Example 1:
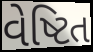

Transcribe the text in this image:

વેષ્ટિત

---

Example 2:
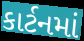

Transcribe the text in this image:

કાર્ટનમાં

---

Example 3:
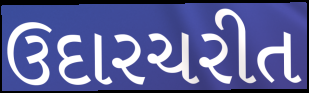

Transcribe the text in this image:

ઉદારચરીત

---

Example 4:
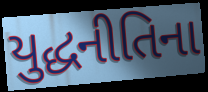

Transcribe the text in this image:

યુદ્ધનીતિના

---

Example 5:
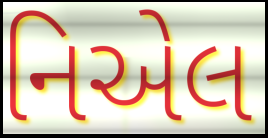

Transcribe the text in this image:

નિએલ